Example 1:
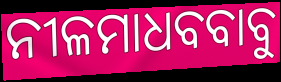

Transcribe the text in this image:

ନୀଳମାଧବବାବୁ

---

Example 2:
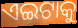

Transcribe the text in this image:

ଏଇଟାକୁ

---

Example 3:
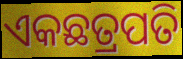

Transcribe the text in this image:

ଏକଛତ୍ରପତି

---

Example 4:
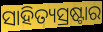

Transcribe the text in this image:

ସାହିତ୍ୟସ୍ରଷ୍ଟାର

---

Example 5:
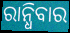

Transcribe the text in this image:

ରାନ୍ଧିବାର